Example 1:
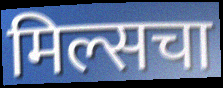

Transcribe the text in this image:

मिल्सचा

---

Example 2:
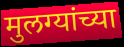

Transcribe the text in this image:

मुलग्यांच्या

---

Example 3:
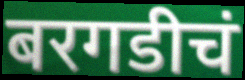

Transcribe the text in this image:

बरगडीचं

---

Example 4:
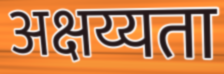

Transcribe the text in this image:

अक्षय्यता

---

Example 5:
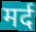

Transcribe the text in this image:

मर्द